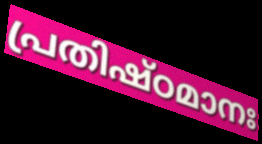
പ്രതിഷ്ഠമാനഃ